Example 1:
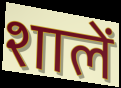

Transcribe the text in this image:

शालें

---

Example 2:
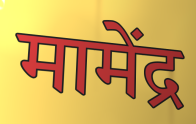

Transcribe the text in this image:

मामेंद्र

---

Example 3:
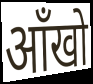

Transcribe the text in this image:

ऑंखो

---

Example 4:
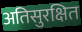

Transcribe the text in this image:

अतिसुरक्षित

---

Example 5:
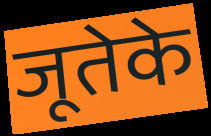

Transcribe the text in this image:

जूतेके